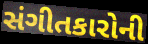
સંગીતકારોની